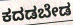
ಕದಡಬೇಡ